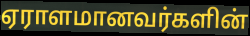
ஏராளமானவர்களின்